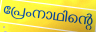
പ്രേംനാഥിന്റെ